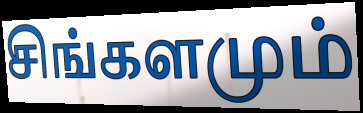
சிங்களமும்